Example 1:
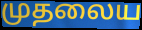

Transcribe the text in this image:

முதலைய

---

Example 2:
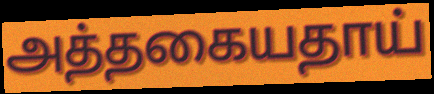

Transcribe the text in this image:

அத்தகையதாய்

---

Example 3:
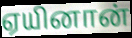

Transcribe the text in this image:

ஏயினான்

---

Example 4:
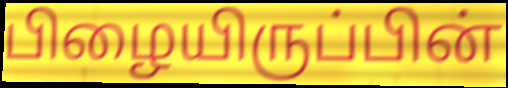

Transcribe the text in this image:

பிழையிருப்பின்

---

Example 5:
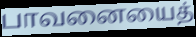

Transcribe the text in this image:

பாவனையைத்